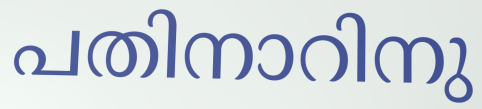
പതിനാറിനു